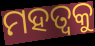
ମହତ୍ଵକୁ